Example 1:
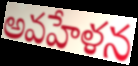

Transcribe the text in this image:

అవహేళన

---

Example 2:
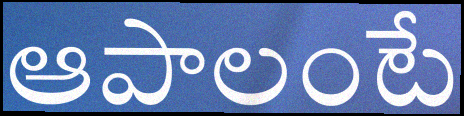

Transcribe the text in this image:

ఆపాలంటే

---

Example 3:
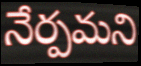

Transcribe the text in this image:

నేర్పమని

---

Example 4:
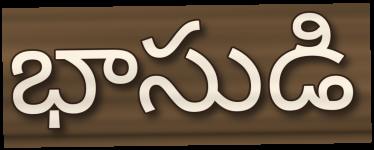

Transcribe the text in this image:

భాసుడి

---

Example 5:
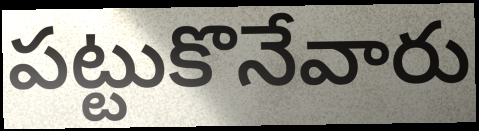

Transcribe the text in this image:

పట్టుకొనేవారు